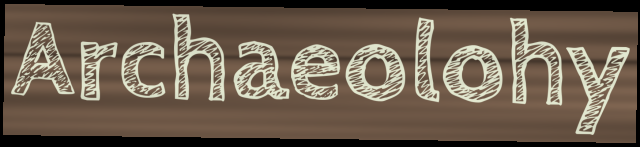
Archaeolohy